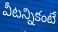
వీటన్నికంటే